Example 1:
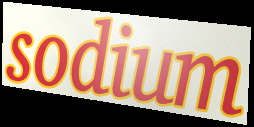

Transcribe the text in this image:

sodium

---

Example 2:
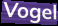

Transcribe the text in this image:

Vogel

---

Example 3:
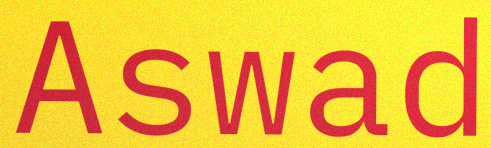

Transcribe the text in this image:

Aswad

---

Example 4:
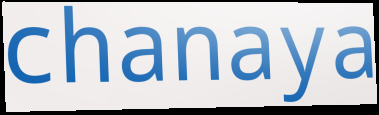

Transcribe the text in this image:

chanaya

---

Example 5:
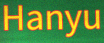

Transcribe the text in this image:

Hanyu